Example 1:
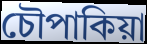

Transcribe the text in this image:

চৌপাকিয়া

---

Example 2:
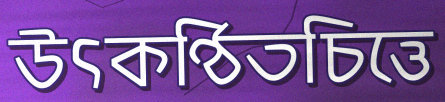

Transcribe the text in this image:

উৎকণ্ঠিতচিত্তে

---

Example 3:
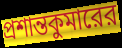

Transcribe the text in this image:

প্রশান্তকুমারের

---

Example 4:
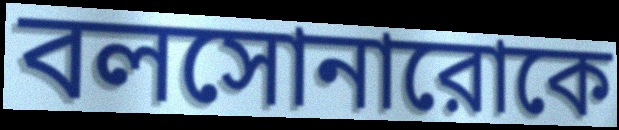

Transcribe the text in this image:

বলসোনারোকে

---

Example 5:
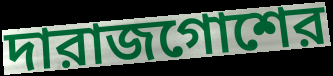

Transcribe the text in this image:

দারাজগোশের